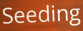
Seeding